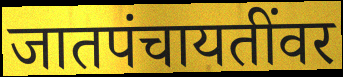
जातपंचायतींवर